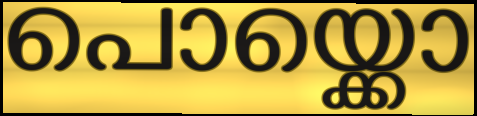
പൊയ്ക്കൊ